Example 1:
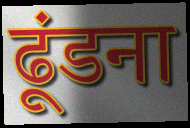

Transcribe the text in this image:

ढूंडना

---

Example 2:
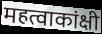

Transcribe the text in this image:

महत्‍वाकांक्षी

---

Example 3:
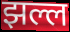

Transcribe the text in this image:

झल्ल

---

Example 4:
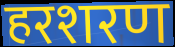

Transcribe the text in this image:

हरशरण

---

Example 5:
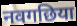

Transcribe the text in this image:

नवगछिया